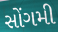
સોંગમી